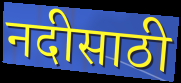
नदीसाठी